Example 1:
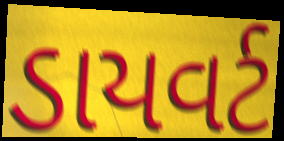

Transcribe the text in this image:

ડાયવર્ટ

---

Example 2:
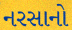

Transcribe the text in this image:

નરસાનો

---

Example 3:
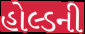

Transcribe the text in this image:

હોલ્ડની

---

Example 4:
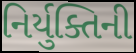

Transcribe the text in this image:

નિર્યુક્તિની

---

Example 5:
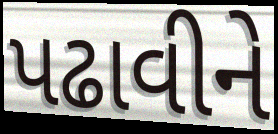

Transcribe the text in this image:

પઢાવીને